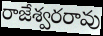
రాజేశ్వరరావు